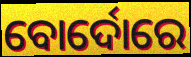
ବୋର୍ଦୋରେ